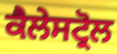
ਕੈਲੇਸਟ੍ਰੋਲ